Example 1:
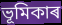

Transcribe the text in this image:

ভূমিকাৰ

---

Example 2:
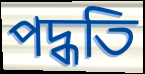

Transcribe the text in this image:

পদ্ধতি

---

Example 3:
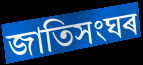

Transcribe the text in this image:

জাতিসংঘৰ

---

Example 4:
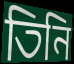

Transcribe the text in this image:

তিনি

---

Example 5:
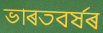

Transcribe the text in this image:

ভাৰতবৰ্ষৰ